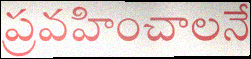
ప్రవహించాలనే